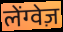
लेंग्वेज़